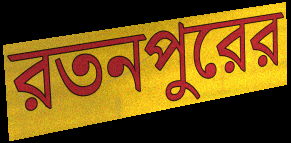
রতনপুরের